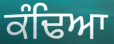
ਕੰਢਿਆ